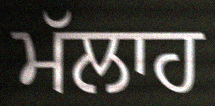
ਮੱਲਾਹ